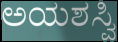
ಅಯಶಸ್ವಿ